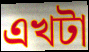
এখটা